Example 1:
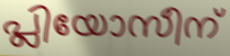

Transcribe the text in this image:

പ്ലിയോസീന്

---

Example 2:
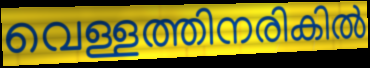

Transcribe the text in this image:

വെള്ളത്തിനരികിൽ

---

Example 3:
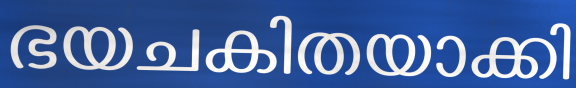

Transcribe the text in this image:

ഭയചകിതയാക്കി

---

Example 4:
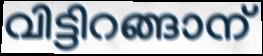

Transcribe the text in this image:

വിട്ടിറങ്ങാന്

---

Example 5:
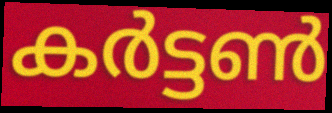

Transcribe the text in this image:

കർട്ടൺ